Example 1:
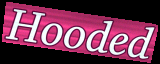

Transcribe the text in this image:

Hooded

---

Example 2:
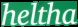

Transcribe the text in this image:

heltha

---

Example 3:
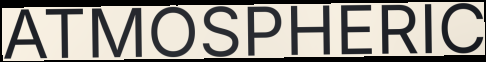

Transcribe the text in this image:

ATMOSPHERIC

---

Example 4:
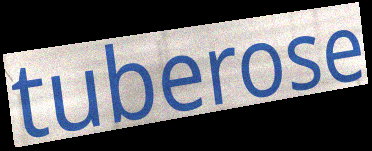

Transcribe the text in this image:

tuberose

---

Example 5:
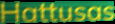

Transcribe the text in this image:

Hattusas